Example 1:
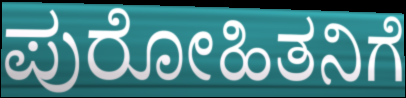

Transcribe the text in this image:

ಪುರೋಹಿತನಿಗೆ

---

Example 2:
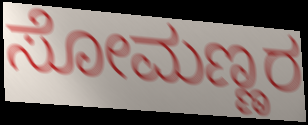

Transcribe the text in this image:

ಸೋಮಣ್ಣರ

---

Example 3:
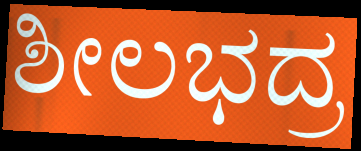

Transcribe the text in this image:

ಶೀಲಭದ್ರ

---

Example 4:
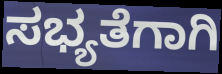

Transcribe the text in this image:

ಸಭ್ಯತೆಗಾಗಿ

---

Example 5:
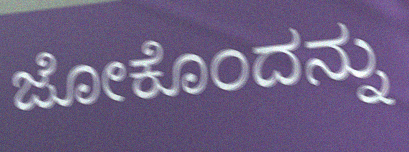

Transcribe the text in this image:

ಜೋಕೊಂದನ್ನು